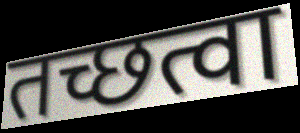
तच्छत्वा